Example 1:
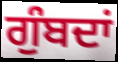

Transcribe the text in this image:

ਗੁੰਬਦਾਂ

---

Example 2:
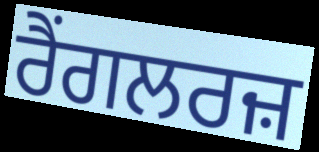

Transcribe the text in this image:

ਰੈਂਗਲਰਜ਼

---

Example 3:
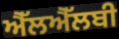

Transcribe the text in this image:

ਐੱਲਐੱਲਬੀ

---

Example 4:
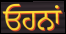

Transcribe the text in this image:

ਓਹਨਾਂ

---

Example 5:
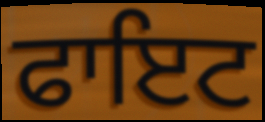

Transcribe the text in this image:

ਫਾਇਟ